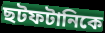
ছটফটানিকে